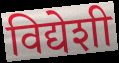
विद्येशी